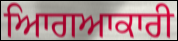
ਆਿਗਆਕਾਰੀ